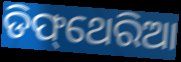
ଡିଫ୍‌ଥେରିଆ